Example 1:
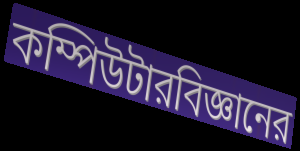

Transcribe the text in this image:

কম্পিউটারবিজ্ঞানের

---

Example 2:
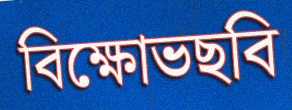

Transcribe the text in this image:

বিক্ষোভছবি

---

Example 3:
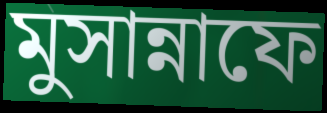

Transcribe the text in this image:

মুসান্নাফে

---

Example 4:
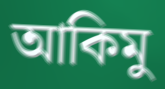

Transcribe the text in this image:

আকিমু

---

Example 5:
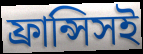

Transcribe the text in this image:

ফ্রান্সিসই